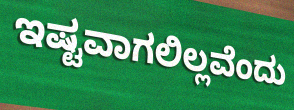
ಇಷ್ಟವಾಗಲಿಲ್ಲವೆಂದು